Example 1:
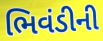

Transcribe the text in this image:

ભિવંડીની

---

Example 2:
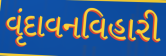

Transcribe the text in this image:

વૃંદાવનવિહારી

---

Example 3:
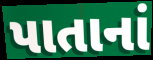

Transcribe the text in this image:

પાતાનાં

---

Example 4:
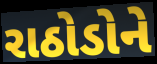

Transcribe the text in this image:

રાઠોડોને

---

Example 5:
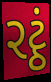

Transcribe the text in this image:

રટ્ઠં